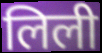
लिली